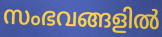
സംഭവങ്ങളിൽ